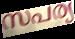
സപര്യ